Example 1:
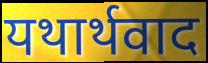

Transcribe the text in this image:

यथार्थवाद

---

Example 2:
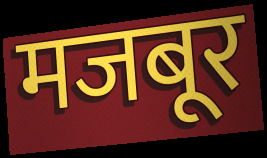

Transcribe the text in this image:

मजबूर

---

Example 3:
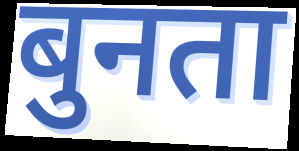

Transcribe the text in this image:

बुनता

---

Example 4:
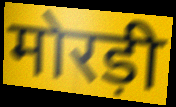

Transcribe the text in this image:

मोरड़ी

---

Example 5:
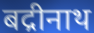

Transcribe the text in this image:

बद्रीनाथ